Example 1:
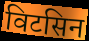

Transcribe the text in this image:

विटसिन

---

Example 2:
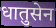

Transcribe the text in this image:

धातुसेन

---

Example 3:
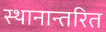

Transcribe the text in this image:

स्थानान्तरित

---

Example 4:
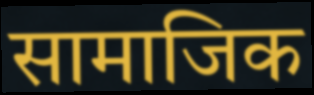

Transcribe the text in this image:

सामाजिक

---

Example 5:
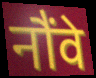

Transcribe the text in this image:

नौंवे